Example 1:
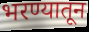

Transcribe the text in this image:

भरण्यातून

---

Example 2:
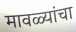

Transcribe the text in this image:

मावळ्यांचा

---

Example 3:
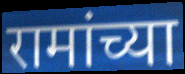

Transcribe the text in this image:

रामांच्या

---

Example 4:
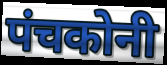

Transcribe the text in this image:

पंचकोनी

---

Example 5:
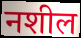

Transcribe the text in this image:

नशील